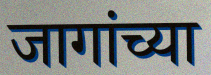
जागांच्या